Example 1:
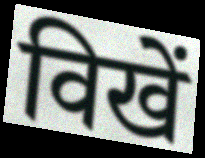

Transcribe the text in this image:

विखें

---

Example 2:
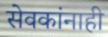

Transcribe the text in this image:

सेवकांनाही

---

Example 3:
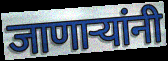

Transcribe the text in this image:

जाणाऱ्यांनी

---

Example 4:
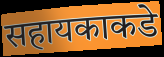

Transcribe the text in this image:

सहायकाकडे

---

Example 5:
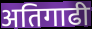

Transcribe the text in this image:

अतिगाढी